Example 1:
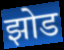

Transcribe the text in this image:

झोड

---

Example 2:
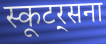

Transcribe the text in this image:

स्कूटर्सना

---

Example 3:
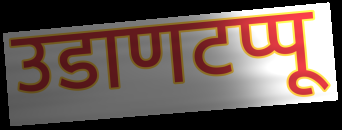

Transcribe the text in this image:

उडाणटप्पू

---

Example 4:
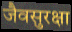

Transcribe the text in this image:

जैवसुरक्षा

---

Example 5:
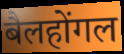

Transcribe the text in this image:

बैलहोंगल